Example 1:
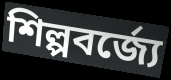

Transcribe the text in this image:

শিল্পবর্জ্যে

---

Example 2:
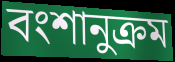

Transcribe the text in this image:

বংশানুক্রম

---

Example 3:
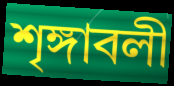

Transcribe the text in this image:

শৃঙ্গাবলী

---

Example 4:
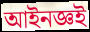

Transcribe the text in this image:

আইনজ্ঞই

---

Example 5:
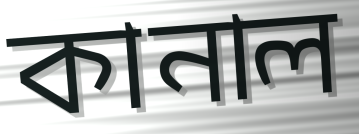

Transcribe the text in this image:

কানাল